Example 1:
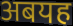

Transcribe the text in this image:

अबयह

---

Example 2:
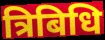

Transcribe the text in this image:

त्रिबिधि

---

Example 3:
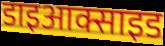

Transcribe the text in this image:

डाइआक्साइड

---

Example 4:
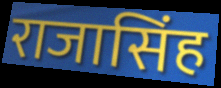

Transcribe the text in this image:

राजासिंह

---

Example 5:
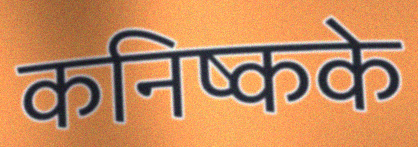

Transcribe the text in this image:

कनिष्कके